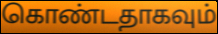
கொண்டதாகவும்